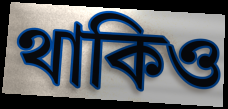
থাকিও